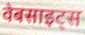
वेबसाइट्स